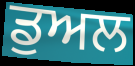
ਡੁਅਲ